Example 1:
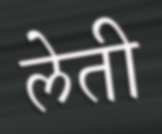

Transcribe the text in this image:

लेती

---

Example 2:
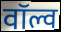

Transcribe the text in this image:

वॉल्व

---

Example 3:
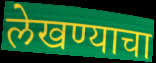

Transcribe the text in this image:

लेखण्याचा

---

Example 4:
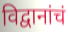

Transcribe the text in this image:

विद्वानांचं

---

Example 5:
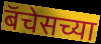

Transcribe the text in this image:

बॅचेसच्या